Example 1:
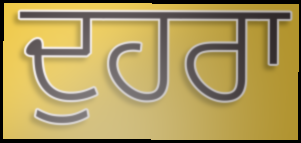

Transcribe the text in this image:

ਦੁਹਰਾ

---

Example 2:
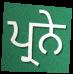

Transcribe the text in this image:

ਪ੍ਰਨੇ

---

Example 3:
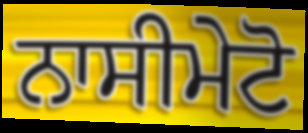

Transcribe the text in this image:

ਨਾਸੀਮੇਟੋ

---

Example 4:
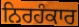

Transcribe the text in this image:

ਨਿਰਹੰਕਾਰ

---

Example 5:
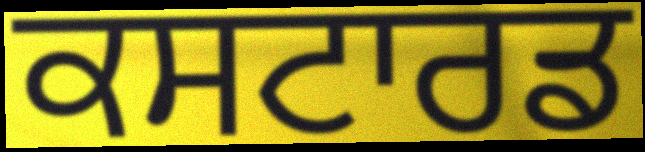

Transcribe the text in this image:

ਕਸਟਾਰਡ